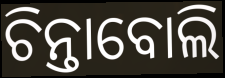
ଚିନ୍ତାବୋଲି